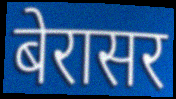
बेरासर